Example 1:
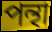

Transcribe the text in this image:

পন্থা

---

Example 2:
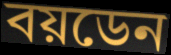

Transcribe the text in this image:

বয়ডেন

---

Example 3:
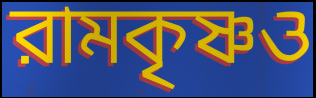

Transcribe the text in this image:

রামকৃষ্ণও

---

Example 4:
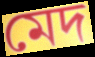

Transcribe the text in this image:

মেদ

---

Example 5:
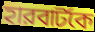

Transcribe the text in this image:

হারবার্টকে